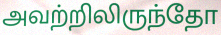
அவற்றிலிருந்தோ